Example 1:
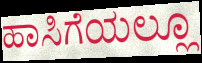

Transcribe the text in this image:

ಹಾಸಿಗೆಯಲ್ಲೂ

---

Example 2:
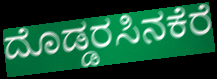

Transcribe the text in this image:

ದೊಡ್ಡರಸಿನಕೆರೆ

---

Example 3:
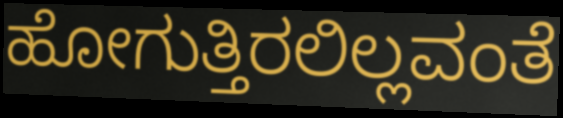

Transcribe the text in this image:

ಹೋಗುತ್ತಿರಲಿಲ್ಲವಂತೆ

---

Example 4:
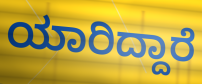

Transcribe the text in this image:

ಯಾರಿದ್ದಾರೆ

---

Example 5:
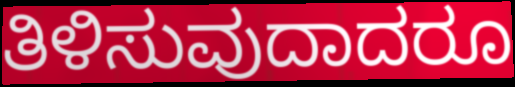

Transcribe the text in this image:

ತಿಳಿಸುವುದಾದರೂ